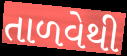
તાળવેથી